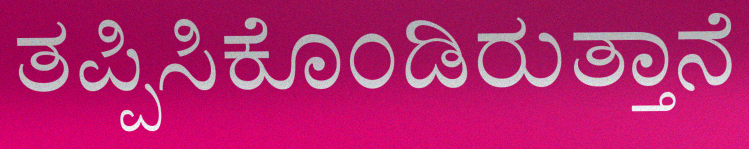
ತಪ್ಪಿಸಿಕೊಂಡಿರುತ್ತಾನೆ